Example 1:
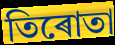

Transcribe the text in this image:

তিৰোতা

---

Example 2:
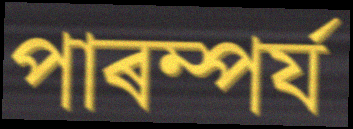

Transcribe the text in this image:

পাৰম্পৰ্য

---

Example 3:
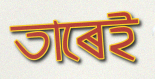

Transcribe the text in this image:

তাৰেই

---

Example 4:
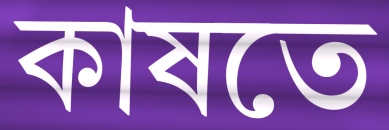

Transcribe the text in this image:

কাষতে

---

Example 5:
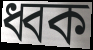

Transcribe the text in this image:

ধ্বক